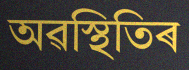
অৱস্থিতিৰ